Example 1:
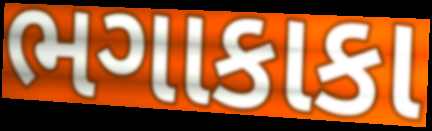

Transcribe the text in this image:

ભગાકાકા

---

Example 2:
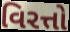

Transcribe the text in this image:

વિરત્તો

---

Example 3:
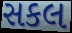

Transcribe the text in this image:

સકલ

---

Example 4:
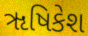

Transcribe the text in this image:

ૠષિકેશ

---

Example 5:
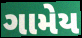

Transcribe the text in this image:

ગામેય